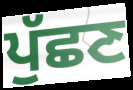
ਪੁੱਛਣ